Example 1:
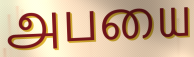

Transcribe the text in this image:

அபயை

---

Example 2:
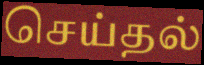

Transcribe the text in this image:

செய்தல்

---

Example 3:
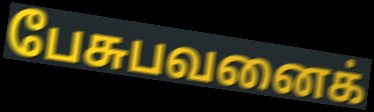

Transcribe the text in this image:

பேசுபவனைக்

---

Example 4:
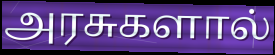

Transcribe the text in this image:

அரசுகளால்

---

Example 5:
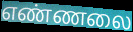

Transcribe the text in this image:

எண்ணலை